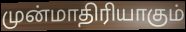
முன்மாதிரியாகும்